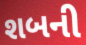
શબની